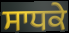
ਸਾਧਕੇ